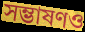
সম্ভাষণও